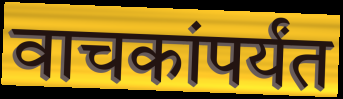
वाचकांपर्यंत